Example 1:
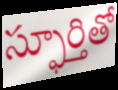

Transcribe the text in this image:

స్ఫూర్తితో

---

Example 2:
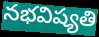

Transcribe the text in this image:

నభవిష్యతి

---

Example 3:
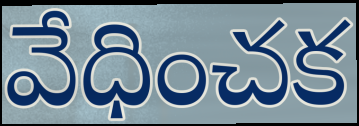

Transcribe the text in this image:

వేధించక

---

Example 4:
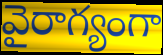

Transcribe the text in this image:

వైరాగ్యంగా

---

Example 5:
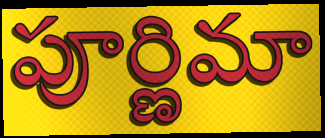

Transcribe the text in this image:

పూర్ణిమా